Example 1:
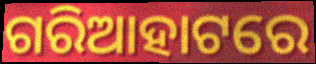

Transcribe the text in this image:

ଗରିଆହାଟରେ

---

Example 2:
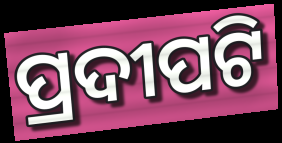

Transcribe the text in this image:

ପ୍ରଦୀପଟି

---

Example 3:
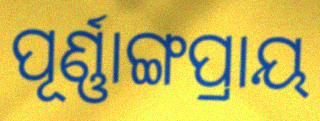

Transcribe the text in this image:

ପୂର୍ଣ୍ଣାଙ୍ଗପ୍ରାୟ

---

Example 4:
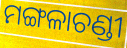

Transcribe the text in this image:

ମଙ୍ଗଳାଚଣ୍ଡୀ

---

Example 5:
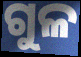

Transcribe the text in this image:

ଗୁଳ